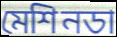
মেশিনডা